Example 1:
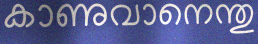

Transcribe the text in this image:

കാണുവാനെന്തു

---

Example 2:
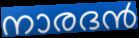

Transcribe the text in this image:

നാരദൻ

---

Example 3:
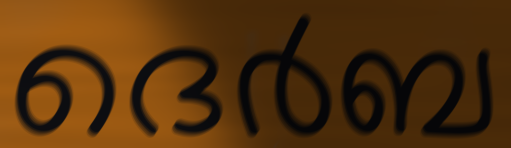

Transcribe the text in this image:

ദെർബ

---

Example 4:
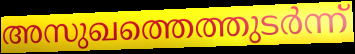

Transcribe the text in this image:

അസുഖത്തെത്തുടർന്ന്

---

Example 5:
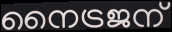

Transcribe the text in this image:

നൈട്രജന്